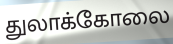
துலாக்கோலை